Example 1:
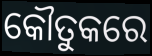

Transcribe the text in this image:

କୌତୁକରେ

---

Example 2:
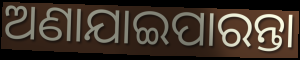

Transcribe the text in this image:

ଅଣାଯାଇପାରନ୍ତା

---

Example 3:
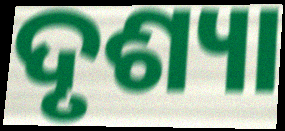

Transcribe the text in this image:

ଦୃଶ୍ୟା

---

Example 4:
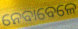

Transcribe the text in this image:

ନେବାବେଳେ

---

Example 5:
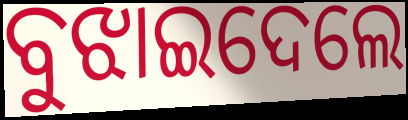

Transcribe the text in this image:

ବୁଝାଇଦେଲେ